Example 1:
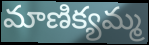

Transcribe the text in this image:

మాణిక్యమ్మ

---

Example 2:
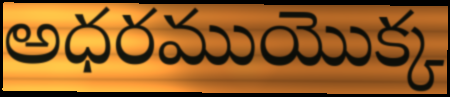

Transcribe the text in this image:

అధరముయొక్క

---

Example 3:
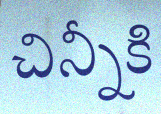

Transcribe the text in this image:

చిన్నీకి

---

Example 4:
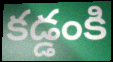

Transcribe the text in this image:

కడ్డంకి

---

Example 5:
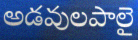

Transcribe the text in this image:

అడవులపాలై